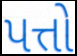
પત્તો